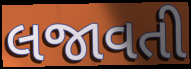
લજાવતી